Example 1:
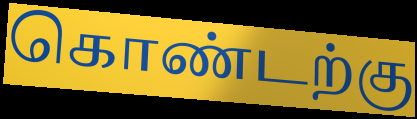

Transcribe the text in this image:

கொண்டற்கு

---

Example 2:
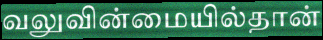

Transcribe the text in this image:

வலுவின்மையில்தான்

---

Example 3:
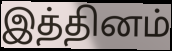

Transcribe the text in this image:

இத்தினம்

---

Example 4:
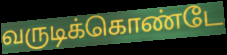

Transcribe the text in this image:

வருடிக்கொண்டே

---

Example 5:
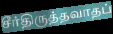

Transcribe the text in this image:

சீர்திருத்தவாதப்